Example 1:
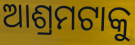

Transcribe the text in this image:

ଆଶ୍ରମଟାକୁ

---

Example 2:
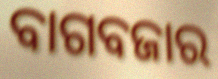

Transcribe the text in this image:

ବାଗବଜାର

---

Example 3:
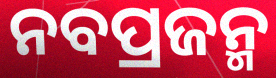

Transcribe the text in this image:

ନବପ୍ରଜନ୍ମ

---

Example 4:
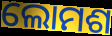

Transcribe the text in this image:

ଲୋମଶ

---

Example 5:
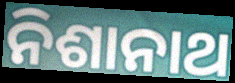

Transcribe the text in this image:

ନିଶାନାଥ